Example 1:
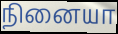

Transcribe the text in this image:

நினையா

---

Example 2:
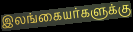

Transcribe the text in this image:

இலங்கையர்களுக்கு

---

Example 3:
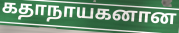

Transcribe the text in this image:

கதாநாயகனான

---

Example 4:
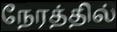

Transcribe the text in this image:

நேரத்தில்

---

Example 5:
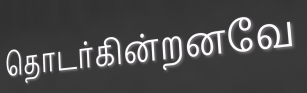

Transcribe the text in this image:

தொடர்கின்றனவே